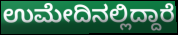
ಉಮೇದಿನಲ್ಲಿದ್ದಾರೆ